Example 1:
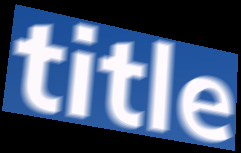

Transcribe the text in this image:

title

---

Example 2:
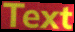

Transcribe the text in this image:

Text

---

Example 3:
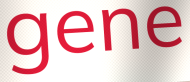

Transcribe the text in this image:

gene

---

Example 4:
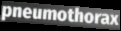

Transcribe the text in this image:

pneumothorax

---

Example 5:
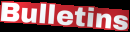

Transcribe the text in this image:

Bulletins